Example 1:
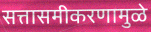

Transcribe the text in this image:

सत्तासमीकरणामुळे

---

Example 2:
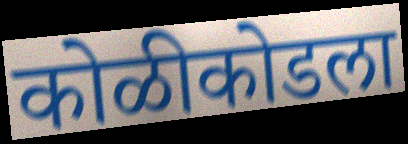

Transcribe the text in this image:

कोळीकोडला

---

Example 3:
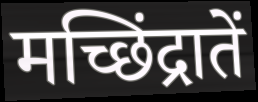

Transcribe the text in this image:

मच्छिंद्रातें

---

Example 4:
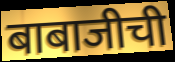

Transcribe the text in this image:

बाबाजीची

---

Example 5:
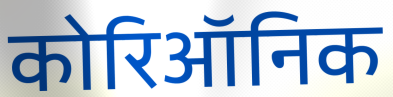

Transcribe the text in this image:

कोरिऑनिक